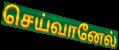
செய்வானேல்